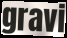
gravi